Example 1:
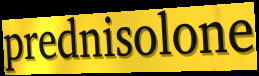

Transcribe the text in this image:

prednisolone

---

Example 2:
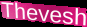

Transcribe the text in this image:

Thevesh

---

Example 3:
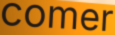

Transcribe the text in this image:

comer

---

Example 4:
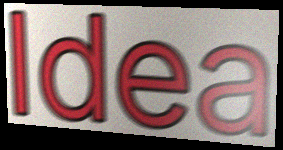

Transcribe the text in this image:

Idea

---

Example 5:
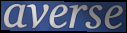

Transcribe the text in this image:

averse